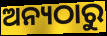
ଅନ୍ୟଠାରୁ